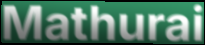
Mathurai